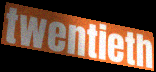
twentieth